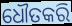
ଧୌତକରି